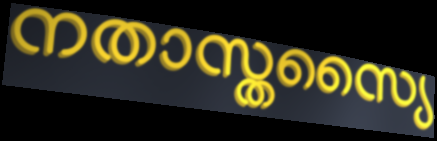
നതാസ്തസ്യൈ